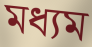
মধ্যম